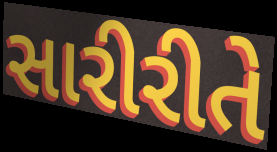
સારીરીતે